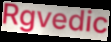
Rgvedic